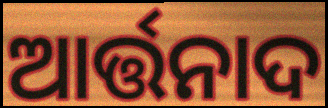
ଆର୍ତ୍ତନାଦ